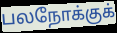
பலநோக்குக்